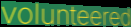
volunteered